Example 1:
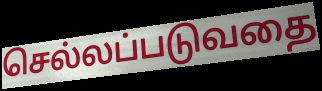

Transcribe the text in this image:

செல்லப்படுவதை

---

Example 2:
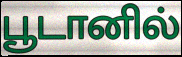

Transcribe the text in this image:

பூடானில்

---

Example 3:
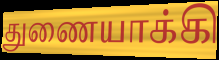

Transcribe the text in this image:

துணையாக்கி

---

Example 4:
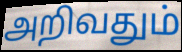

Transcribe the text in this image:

அறிவதும்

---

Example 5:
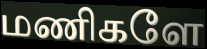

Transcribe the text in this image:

மணிகளே